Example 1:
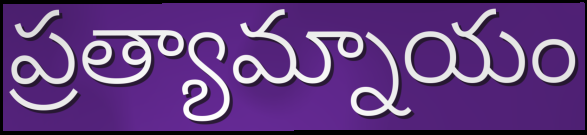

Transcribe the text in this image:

ప్రత్యామ్నాయం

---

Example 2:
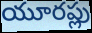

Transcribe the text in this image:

యూరప్లు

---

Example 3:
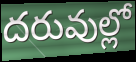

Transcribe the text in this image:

దరువుల్లో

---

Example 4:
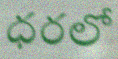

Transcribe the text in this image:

ధరలో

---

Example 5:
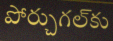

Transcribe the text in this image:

పోర్చుగల్‌కు